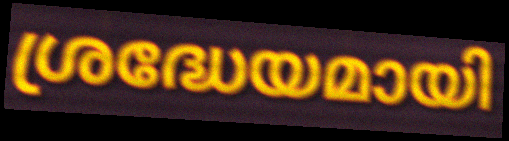
ശ്രദ്ധേയമായി